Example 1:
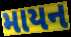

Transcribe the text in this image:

માયન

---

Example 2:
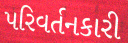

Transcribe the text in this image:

પરિવર્તનકારી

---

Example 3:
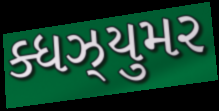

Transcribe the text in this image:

ક્ધઝ્યુમર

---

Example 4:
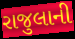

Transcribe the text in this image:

રાજુલાની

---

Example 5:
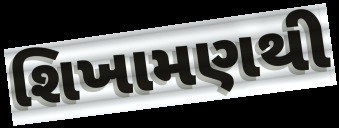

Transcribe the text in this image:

શિખામણથી